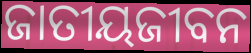
ଜାତୀୟଜୀବନ